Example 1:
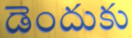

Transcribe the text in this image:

డెందుకు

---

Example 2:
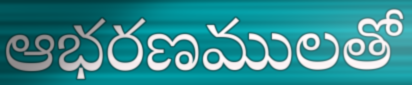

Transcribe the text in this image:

ఆభరణములతో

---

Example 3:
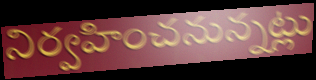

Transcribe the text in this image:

నిర్వహించనున్నట్లు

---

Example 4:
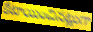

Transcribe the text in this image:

కేటాయించినట్లుగా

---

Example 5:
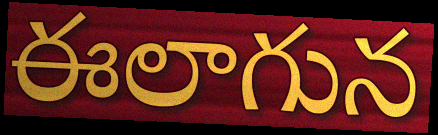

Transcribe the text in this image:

ఈలాగున